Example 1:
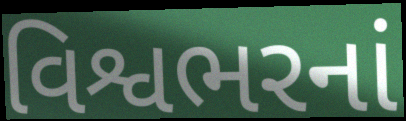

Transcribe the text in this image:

વિશ્વભરનાં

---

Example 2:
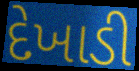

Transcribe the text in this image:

દેખાડી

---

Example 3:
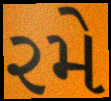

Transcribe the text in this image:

રમે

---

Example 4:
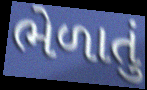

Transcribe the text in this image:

ભેળાતું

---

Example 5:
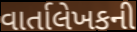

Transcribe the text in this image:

વાર્તાલેખકની